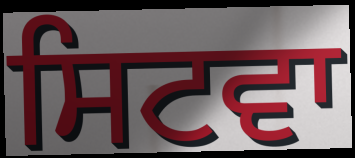
ਸਿਟਵਾ